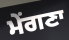
ਮੇਂਗਣਾ